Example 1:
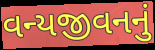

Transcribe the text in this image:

વન્યજીવનનું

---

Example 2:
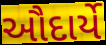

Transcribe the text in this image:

ઔદાર્યે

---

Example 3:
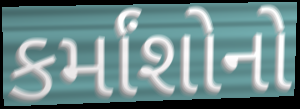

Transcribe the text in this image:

કર્માંશોનો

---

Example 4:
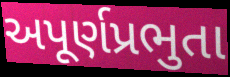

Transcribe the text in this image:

અપૂર્ણપ્રભુતા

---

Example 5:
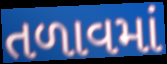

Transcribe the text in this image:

તળાવમાં